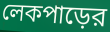
লেকপাড়ের